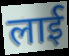
लाई